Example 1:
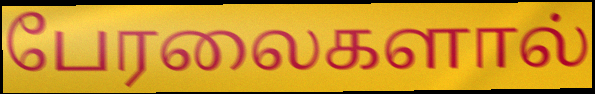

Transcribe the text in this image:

பேரலைகளால்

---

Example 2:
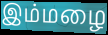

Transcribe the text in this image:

இம்மழை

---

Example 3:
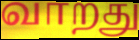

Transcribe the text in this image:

வாறது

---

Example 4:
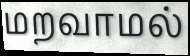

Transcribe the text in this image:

மறவாமல்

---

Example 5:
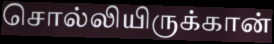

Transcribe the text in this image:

சொல்லியிருக்கான்